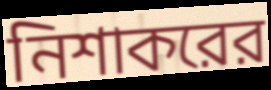
নিশাকরের